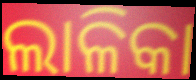
ଲାଳିକା